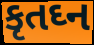
કૃતઘ્ન